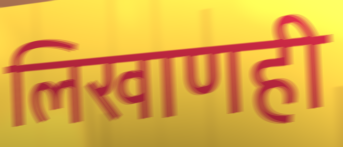
लिखाणही